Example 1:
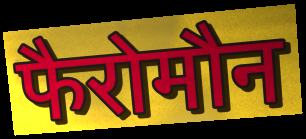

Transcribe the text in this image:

फैरोमौन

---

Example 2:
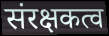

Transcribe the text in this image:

संरक्षकत्व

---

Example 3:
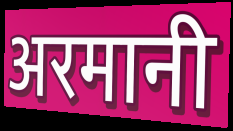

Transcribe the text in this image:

अरमानी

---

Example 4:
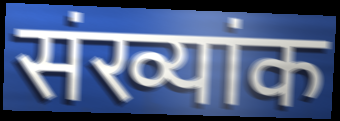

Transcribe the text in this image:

संख्यांक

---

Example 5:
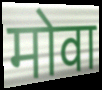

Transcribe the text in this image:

मोवा